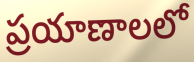
ప్రయాణాలలో